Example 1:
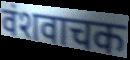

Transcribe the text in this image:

वंशवाचक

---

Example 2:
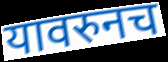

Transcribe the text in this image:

यावरुनच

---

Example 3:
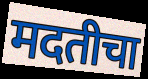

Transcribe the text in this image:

मदतीचा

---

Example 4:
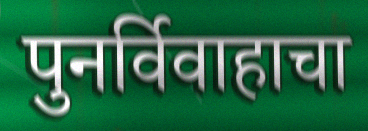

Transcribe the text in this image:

पुनर्विवाहाचा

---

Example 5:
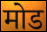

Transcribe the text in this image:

मोड